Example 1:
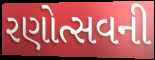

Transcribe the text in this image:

રણોત્સવની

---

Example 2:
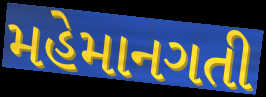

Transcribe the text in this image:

મહેમાનગતી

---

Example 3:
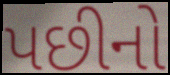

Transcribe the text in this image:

પછીનો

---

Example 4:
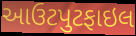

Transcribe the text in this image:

આઉટપુટફાઇલ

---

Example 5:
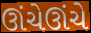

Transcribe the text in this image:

ઊંચેઊંચે